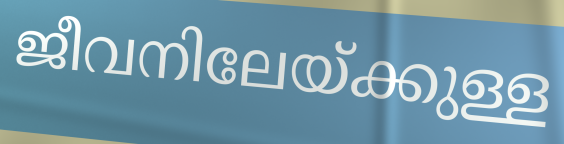
ജീവനിലേയ്ക്കുള്ള